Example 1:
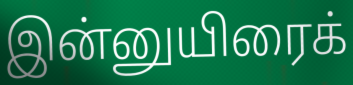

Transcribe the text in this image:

இன்னுயிரைக்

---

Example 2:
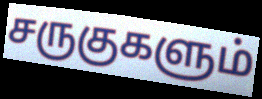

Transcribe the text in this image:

சருகுகளும்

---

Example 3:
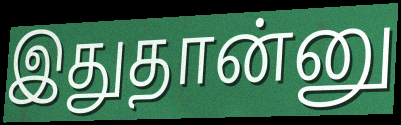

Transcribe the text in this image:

இதுதான்னு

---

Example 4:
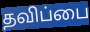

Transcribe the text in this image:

தவிப்பை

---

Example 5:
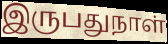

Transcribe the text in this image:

இருபதுநாள்